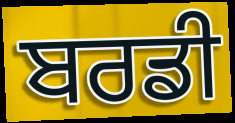
ਬਰਡੀ